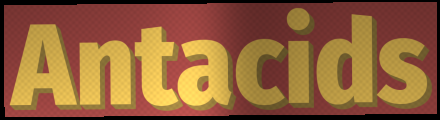
Antacids